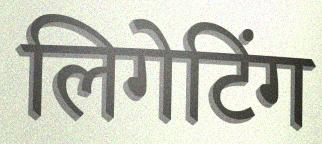
लिगेटिंग